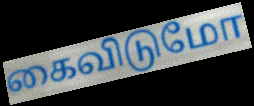
கைவிடுமோ